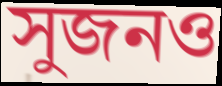
সুজনও